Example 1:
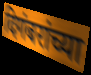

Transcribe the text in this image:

दिगंबरांच्या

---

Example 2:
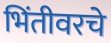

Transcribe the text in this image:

भिंतीवरचे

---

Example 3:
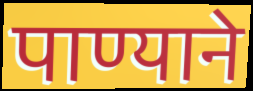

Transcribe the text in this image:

पाण्याने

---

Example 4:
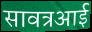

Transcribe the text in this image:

सावत्रआई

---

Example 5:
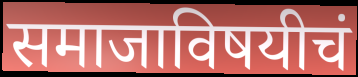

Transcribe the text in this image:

समाजाविषयीचं